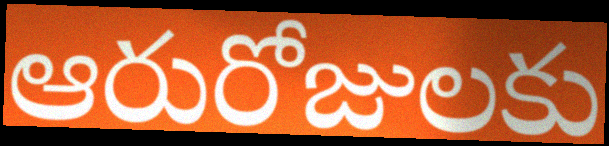
ఆరురోజులకు